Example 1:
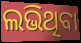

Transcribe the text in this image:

ଲଭିଥିବା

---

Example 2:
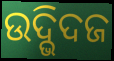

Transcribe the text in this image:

ଉଦ୍ଭିଦଜ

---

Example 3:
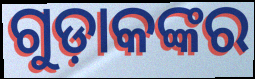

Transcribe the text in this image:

ଗୁଡ଼ାକଙ୍କର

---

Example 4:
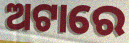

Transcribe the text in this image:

ଅଟାରେ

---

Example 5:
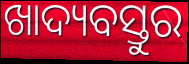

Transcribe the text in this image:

ଖାଦ୍ୟବସ୍ତୁର